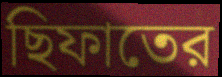
ছিফাতের